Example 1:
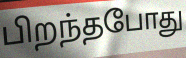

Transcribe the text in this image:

பிறந்தபோது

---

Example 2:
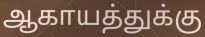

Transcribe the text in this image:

ஆகாயத்துக்கு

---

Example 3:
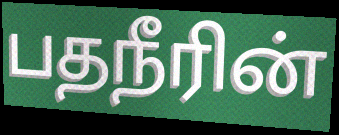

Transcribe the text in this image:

பதநீரின்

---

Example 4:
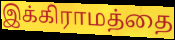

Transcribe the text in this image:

இக்கிராமத்தை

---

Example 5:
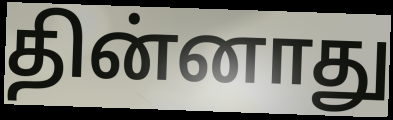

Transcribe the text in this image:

தின்னாது